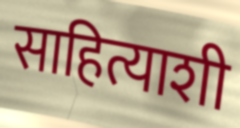
साहित्याशी